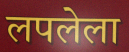
लपलेला